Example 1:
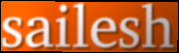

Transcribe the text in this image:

sailesh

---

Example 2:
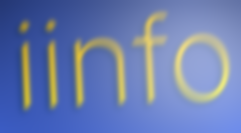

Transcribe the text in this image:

iinfo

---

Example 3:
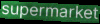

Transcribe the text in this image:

supermarket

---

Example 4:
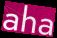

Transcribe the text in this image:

aha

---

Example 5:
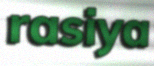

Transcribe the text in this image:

rasiya